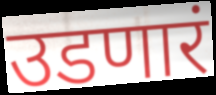
उडणारं